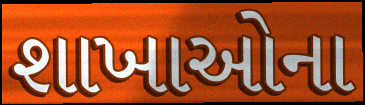
શાખાઓના